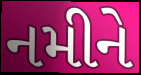
નમીને